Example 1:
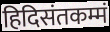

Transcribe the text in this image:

हिदिसंतकम्मं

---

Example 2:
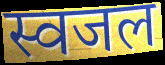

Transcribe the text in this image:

स्वजल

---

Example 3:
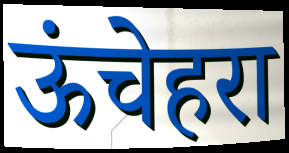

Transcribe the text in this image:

ऊंचेहरा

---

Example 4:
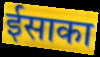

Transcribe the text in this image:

ईसाका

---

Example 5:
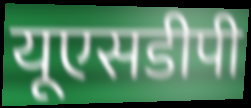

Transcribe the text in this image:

यूएसडीपी